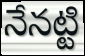
నేనట్టి